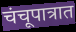
चंचूपात्रात